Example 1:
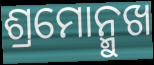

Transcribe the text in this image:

ଶ୍ରମୋନ୍ମୁଖ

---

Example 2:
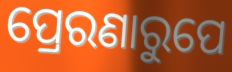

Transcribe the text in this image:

ପ୍ରେରଣାରୁପେ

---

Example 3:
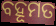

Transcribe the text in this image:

ବହୂମତ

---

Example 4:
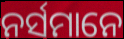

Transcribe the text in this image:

ନର୍ସମାନେ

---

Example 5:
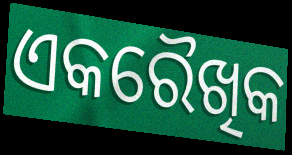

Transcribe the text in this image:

ଏକରୈଖିକ